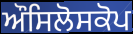
ਔਸਿਲੋਸਕੋਪ